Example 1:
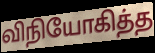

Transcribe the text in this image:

விநியோகித்த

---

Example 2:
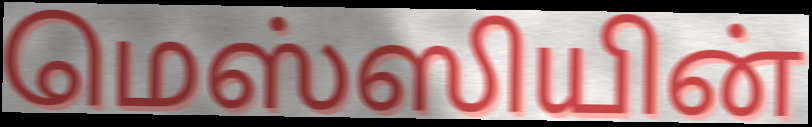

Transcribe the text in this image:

மெஸ்ஸியின்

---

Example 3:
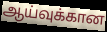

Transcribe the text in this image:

ஆய்வுக்கான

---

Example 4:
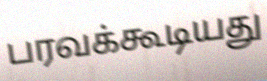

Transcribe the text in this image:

பரவக்கூடியது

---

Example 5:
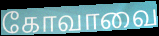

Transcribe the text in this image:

கோவாவை